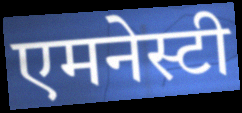
एमनेस्टी